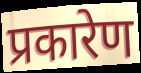
प्रकारेण